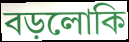
বড়লোকি